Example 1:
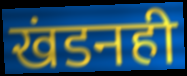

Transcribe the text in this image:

खंडनही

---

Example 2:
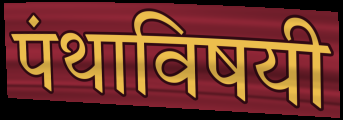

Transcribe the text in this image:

पंथाविषयी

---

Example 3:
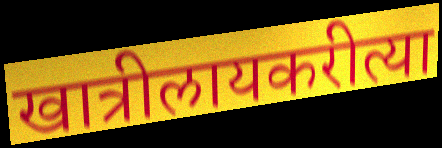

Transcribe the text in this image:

खात्रीलायकरीत्या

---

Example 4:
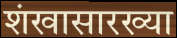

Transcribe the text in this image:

शंखासारख्या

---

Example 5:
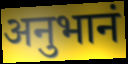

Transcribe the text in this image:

अनुभानं